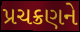
પ્રચક્રણને